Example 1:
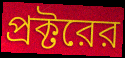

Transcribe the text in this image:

প্রক্টরের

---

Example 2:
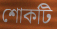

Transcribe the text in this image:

শোকটি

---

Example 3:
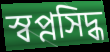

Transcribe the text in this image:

স্বপ্নসিদ্ধ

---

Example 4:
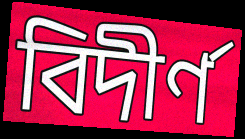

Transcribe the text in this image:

বিদীর্ণ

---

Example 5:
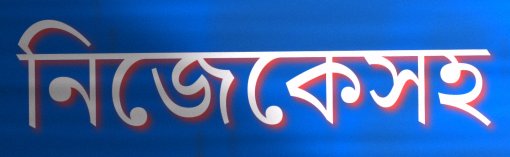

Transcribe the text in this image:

নিজেকেসহ